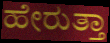
ಹೇರುತ್ತಾ